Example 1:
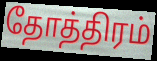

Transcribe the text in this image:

தோத்திரம்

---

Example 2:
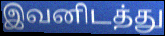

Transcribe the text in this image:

இவனிடத்து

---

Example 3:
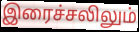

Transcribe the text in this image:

இரைச்சலிலும்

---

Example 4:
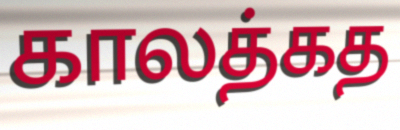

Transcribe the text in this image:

காலத்கத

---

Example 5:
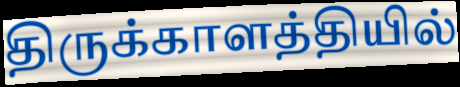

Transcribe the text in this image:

திருக்காளத்தியில்